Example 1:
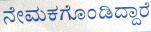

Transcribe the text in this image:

ನೇಮಕಗೊಂಡಿದ್ದಾರೆ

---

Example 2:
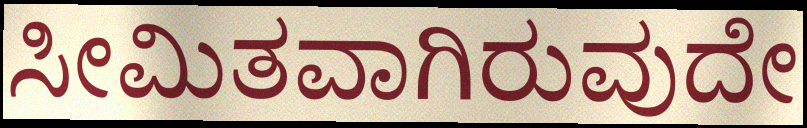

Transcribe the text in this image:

ಸೀಮಿತವಾಗಿರುವುದೇ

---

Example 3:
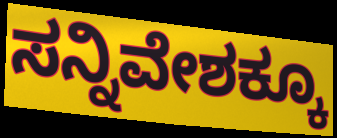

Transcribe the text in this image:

ಸನ್ನಿವೇಶಕ್ಕೂ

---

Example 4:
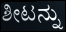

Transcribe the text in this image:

ಶೀಟನ್ನು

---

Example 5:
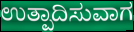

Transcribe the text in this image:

ಉತ್ಪಾದಿಸುವಾಗ